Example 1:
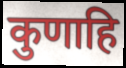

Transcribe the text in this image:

कुणाहि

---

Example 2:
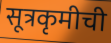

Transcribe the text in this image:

सूत्रकृमीची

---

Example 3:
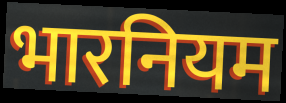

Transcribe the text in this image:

भारनियम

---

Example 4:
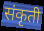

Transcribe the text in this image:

संकृती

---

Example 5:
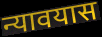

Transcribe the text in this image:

न्यावयास